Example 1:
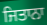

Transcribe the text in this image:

ਜਿਤਾਨਾ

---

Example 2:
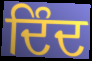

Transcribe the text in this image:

ਦਿੰਦ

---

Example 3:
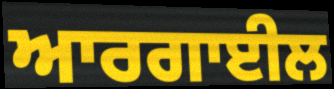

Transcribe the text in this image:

ਆਰਗਾਈਲ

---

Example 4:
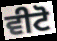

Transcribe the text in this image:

ਵੀਟੋ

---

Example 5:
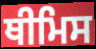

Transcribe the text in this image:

ਥੀਮਿਸ